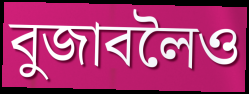
বুজাবলৈও